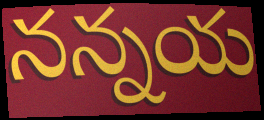
నన్నయ